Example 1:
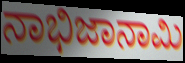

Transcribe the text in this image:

ನಾಭಿಜಾನಾಮಿ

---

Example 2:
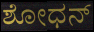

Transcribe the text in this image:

ಶೋಧನ್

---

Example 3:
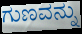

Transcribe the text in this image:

ಗುಣವನ್ನು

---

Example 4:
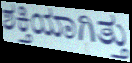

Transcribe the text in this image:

ಶಕ್ತಿಯಾಗಿತ್ತು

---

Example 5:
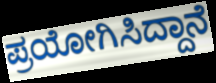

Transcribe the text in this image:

ಪ್ರಯೋಗಿಸಿದ್ದಾನೆ